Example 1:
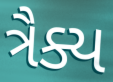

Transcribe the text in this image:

ત્રૈક્ય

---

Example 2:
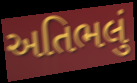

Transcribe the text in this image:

અતિભલું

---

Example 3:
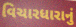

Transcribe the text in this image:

વિચારધારાનું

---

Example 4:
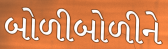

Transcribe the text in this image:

બોળીબોળીને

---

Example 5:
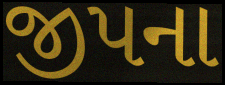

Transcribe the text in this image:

જીપના